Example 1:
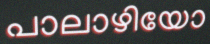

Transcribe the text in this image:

പാലാഴിയോ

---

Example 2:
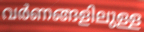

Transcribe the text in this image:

വർണങ്ങളിലുള്ള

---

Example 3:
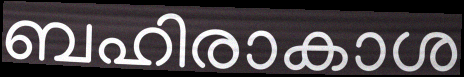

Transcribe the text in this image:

ബഹിരാകാശ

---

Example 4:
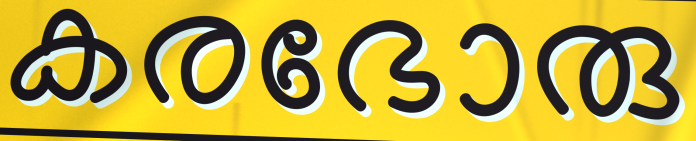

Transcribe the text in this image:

കരഭോരു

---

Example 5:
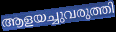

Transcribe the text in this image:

ആളയച്ചുവരുത്തി